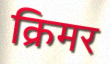
क्रिमर